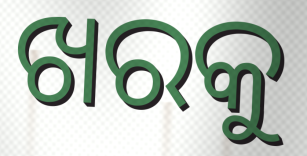
ଖରକୁ